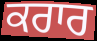
ਕਰਾਰ